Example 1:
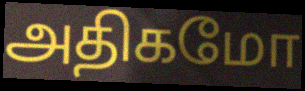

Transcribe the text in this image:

அதிகமோ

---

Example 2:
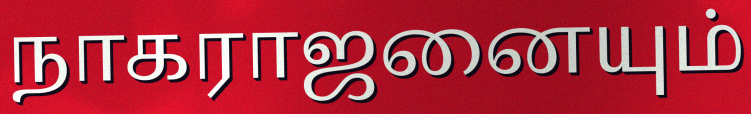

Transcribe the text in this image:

நாகராஜனையும்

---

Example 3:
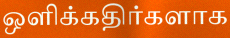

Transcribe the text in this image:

ஒளிக்கதிர்களாக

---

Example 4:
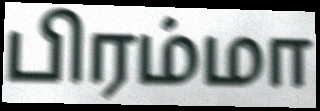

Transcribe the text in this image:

பிரம்மா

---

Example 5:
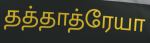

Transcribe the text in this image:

தத்தாத்ரேயா